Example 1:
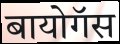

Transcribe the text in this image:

बायोगॅस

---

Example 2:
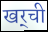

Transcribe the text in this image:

खर्ची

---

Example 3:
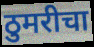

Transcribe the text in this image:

ठुमरीचा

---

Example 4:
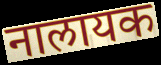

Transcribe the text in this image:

नालायक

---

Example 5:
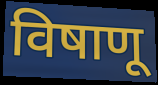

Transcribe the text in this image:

विषाणू